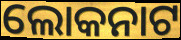
ଲୋକନାଟ